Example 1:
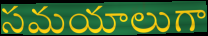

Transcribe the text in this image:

సమయాలుగా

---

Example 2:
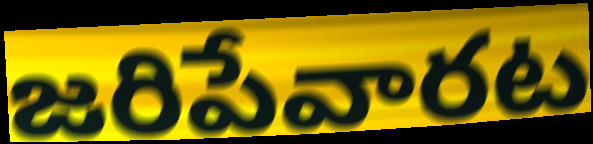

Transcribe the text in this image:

జరిపేవారట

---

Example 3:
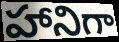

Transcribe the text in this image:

హానిగా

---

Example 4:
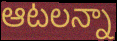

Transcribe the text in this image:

ఆటలన్నా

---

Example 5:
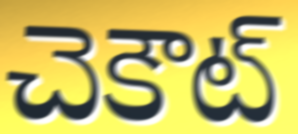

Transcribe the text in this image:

చెకౌట్